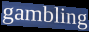
gambling